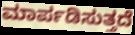
ಮಾರ್ಪಡಿಸುತ್ತದೆ